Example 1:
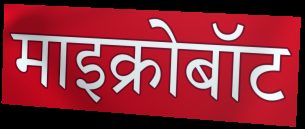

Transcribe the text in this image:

माइक्रोबॉट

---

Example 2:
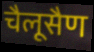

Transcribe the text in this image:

चैलूसैण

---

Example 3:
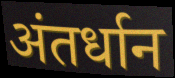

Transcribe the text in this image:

अंतर्धान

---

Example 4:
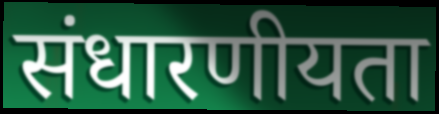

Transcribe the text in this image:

संधारणीयता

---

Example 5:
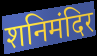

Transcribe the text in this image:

शनिमंदिर